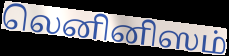
லெனினிஸம்